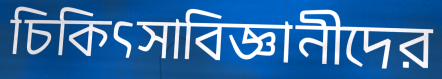
চিকিৎসাবিজ্ঞানীদের